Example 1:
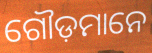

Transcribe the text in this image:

ଗୌଡ଼ମାନେ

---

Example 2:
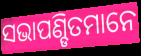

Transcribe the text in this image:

ସଭାପଣ୍ଡିତମାନେ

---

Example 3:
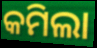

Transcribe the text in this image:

କମିଲା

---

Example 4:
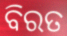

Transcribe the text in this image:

ବିରତ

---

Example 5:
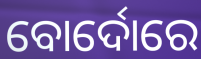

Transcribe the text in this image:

ବୋର୍ଦୋରେ